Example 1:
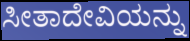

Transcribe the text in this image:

ಸೀತಾದೇವಿಯನ್ನು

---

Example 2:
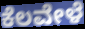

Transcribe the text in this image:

ಕೆಲವೇಳೆ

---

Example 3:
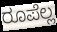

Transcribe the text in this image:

ರೂಪೆಲ್ಲ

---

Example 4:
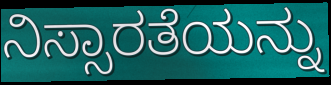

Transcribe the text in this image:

ನಿಸ್ಸಾರತೆಯನ್ನು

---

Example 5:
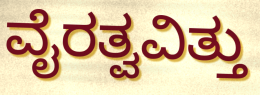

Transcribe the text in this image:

ವೈರತ್ವವಿತ್ತು